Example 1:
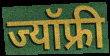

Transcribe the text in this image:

ज्यॉफ्री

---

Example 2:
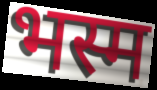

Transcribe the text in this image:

भस्म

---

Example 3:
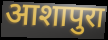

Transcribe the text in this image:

आशापुरा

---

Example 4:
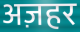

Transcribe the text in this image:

अज़हर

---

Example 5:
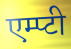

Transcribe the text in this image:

एम्प्टी